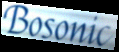
Bosonic